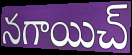
నగాయిచ్